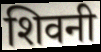
शिवनी